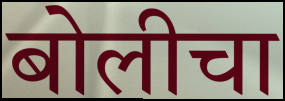
बोलीचा